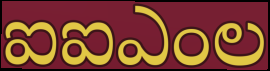
ఐఐఎంల